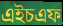
এইচএফ